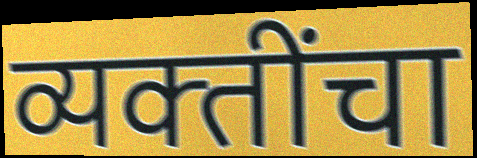
व्यक्‍तींचा